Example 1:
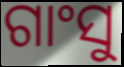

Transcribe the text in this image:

ଗାଂସୁ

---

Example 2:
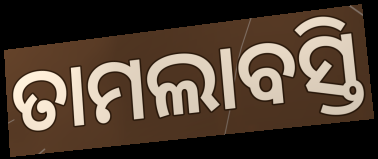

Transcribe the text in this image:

ତାମଲାବସ୍ତି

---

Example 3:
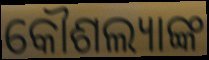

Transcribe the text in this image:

କୌଶଲ୍ୟାଙ୍କ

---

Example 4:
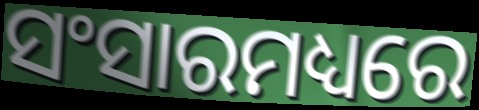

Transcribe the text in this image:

ସଂସାରମଧ୍ୟରେ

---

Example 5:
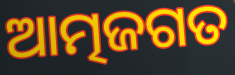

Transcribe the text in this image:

ଆତ୍ମଜଗତ